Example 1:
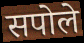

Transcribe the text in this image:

सपोले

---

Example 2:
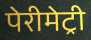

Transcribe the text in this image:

पेरीमेट्री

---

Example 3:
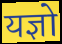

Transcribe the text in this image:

यज्ञो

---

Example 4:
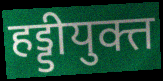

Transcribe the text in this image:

हड्डीयुक्त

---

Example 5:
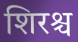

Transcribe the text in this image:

शिरश्च